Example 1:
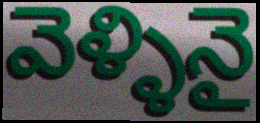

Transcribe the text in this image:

వెళ్ళినై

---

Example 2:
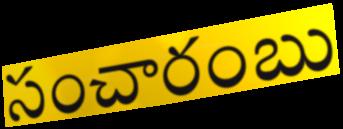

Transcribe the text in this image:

సంచారంబు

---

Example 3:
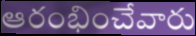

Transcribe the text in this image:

ఆరంభించేవారు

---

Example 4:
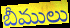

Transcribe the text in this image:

బీములు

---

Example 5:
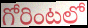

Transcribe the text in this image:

గోరింటలో